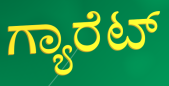
ಗ್ಯಾರೆಟ್